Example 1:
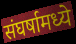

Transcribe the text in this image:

संघर्षामध्ये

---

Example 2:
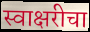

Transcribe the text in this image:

स्वाक्षरीचा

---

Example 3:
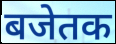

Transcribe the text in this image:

बजेतक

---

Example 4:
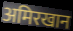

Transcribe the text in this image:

अमिरखान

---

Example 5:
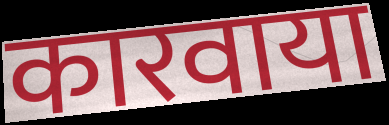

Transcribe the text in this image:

कारवाया